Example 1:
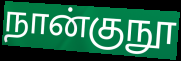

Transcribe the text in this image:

நான்குநூ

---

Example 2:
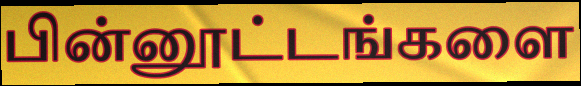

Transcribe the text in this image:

பின்னூட்டங்களை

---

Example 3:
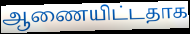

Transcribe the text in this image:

ஆணையிட்டதாக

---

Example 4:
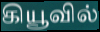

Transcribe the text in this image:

கியூவில்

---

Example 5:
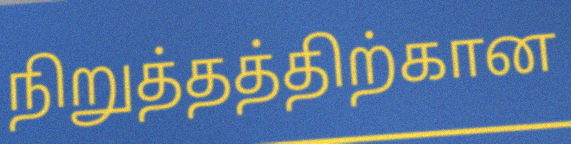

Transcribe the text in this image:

நிறுத்தத்திற்கான